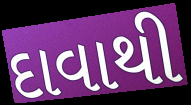
દાવાથી